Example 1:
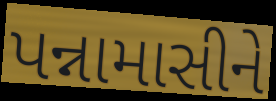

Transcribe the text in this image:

પન્નામાસીને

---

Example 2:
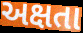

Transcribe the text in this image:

અક્ષતા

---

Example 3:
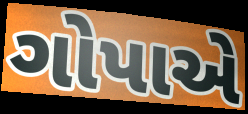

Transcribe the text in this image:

ગોપાએ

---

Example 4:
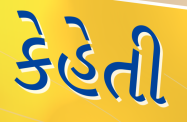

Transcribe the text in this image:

કેહેતી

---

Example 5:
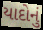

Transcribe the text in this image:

યાદોનું